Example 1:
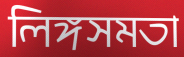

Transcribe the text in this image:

লিঙ্গসমতা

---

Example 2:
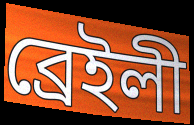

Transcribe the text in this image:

ব্রেইলী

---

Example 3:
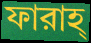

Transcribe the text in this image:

ফারাহ্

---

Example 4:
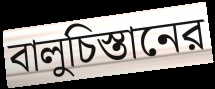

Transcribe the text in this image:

বালুচিস্তানের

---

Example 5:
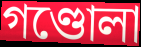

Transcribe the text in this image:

গণ্ডোলা